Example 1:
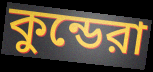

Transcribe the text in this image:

কুন্ডেরা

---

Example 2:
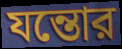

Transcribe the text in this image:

যন্তোর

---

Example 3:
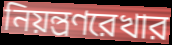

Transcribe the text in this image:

নিয়ন্ত্রণরেখার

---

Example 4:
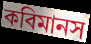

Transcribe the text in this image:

কবিমানস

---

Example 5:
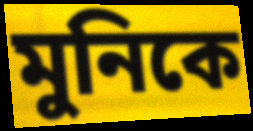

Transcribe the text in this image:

মুনিকে